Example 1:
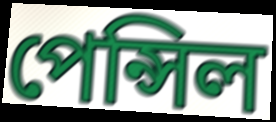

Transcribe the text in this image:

পেন্সিল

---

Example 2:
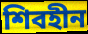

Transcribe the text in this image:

শিবহীন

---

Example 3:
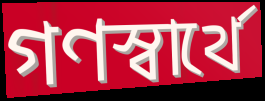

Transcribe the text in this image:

গণস্বার্থে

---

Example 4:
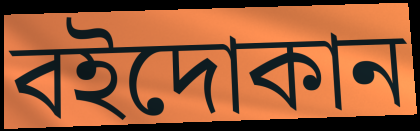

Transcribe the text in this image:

বইদোকান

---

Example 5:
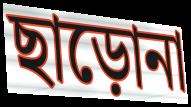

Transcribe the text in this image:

ছাড়োনা